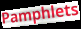
Pamphlets